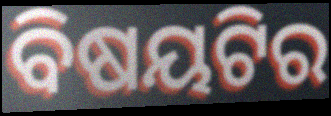
ବିଷୟଟିର